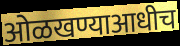
ओळखण्याआधीच